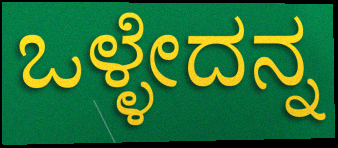
ಒಳ್ಳೇದನ್ನ